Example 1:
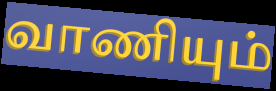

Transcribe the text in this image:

வாணியும்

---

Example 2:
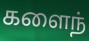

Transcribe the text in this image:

களைந்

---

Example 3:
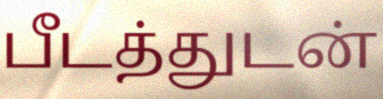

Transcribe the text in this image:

பீடத்துடன்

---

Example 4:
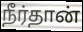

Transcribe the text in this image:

நீர்தான்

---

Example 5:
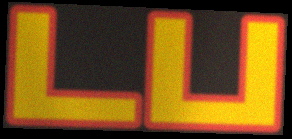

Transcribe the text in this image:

டப